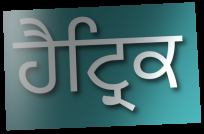
ਹੈਟ੍ਰਿਕ